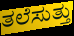
ತಲೆಸುತ್ತು